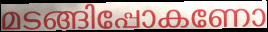
മടങ്ങിപ്പോകണോ